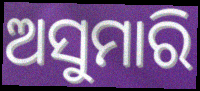
ଅସୁମାରି